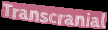
Transcranial